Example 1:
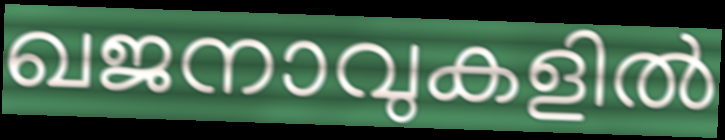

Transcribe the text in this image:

ഖജനാവുകളിൽ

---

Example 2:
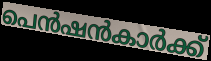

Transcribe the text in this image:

പെൻഷൻകാർക്ക്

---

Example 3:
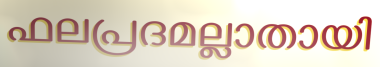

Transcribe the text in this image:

ഫലപ്രദമല്ലാതായി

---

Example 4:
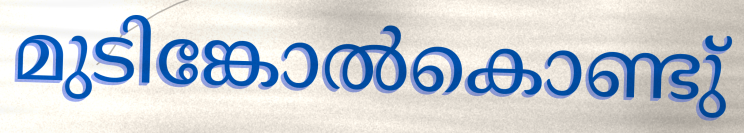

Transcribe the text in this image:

മുടിങ്കോൽകൊണ്ടു്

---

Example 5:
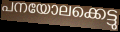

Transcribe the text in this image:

പനയോലക്കെട്ടു